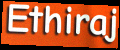
Ethiraj